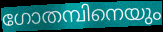
ഗോതമ്പിനെയും